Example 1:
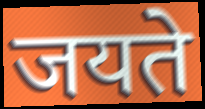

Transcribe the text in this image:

जयते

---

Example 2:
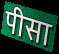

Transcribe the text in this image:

पीसा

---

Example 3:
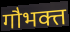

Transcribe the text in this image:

गौभक्त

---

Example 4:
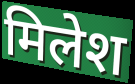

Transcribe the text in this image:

मिलेश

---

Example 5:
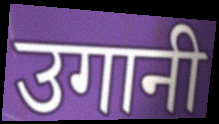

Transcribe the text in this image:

उगानी